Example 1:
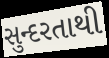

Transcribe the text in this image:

સુન્દરતાથી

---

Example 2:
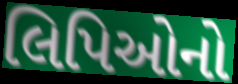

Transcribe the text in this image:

લિપિઓનો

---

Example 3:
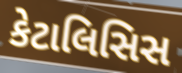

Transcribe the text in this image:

કેટાલિસિસ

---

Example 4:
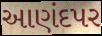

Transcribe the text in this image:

આણંદપર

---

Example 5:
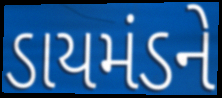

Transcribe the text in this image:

ડાયમંડને